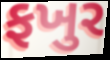
ફખુર